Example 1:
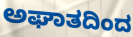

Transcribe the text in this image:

ಅಘಾತದಿಂದ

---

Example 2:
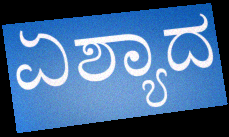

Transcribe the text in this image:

ಏಶ್ಯಾದ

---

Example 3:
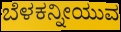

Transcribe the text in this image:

ಬೆಳಕನ್ನೀಯುವ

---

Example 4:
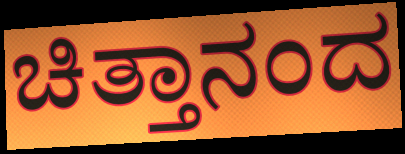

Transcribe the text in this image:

ಚಿತ್ತಾನಂದ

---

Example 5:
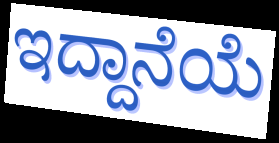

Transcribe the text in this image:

ಇದ್ದಾನೆಯೆ